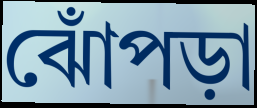
ঝোঁপড়া